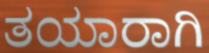
ತಯಾರಾಗಿ